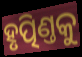
ହୃତ୍ପିଣ୍ତକୁ